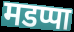
मडप्पा